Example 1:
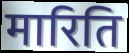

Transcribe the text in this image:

मारिति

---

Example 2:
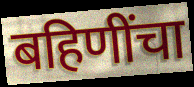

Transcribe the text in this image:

बहिणींचा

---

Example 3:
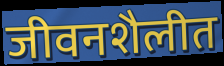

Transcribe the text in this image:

जीवनशैलीत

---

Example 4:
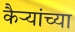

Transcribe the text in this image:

कैऱ्यांच्या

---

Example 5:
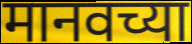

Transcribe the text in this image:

मानवच्या